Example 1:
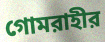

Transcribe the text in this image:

গোমরাহীর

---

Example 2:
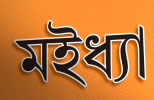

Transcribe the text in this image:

মইধ্যা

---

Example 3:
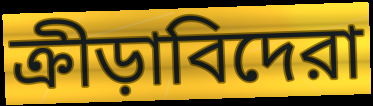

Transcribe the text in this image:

ক্রীড়াবিদেরা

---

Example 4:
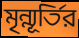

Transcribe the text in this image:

মৃন্মূর্তির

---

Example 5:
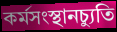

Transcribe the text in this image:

কর্মসংস্থানচ্যুতি